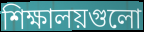
শিক্ষালয়গুলো